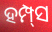
ହମ୍ପ୍‌ସ